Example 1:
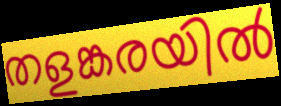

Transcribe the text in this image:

തളങ്കരയിൽ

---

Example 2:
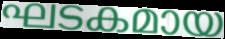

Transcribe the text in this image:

ഘടകമായ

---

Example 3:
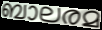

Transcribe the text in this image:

ബാലരമ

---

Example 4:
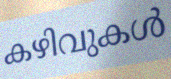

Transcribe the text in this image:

കഴിവുകൾ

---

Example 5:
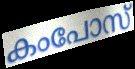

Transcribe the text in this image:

കംപോസ്